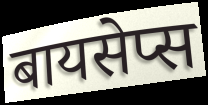
बायसेप्स